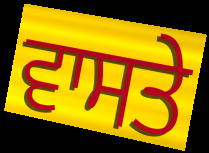
ਵਾਸਤੇ